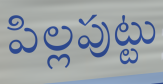
పిల్లపుట్టు